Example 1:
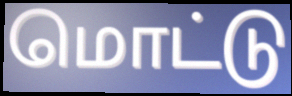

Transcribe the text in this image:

மொட்டு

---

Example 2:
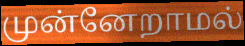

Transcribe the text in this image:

முன்னேறாமல்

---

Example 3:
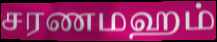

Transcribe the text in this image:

சரணமஹம்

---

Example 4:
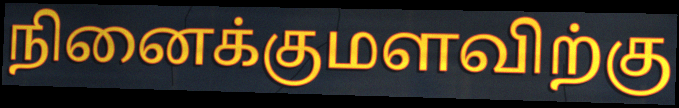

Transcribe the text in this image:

நினைக்குமளவிற்கு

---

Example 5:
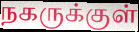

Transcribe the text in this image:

நகருக்குள்